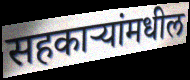
सहकाऱ्यांमधील